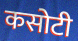
कसोटी